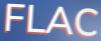
FLAC